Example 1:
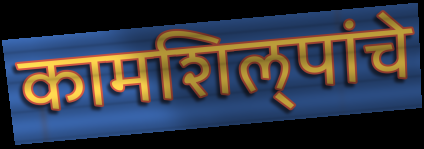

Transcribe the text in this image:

कामशिल्पांचे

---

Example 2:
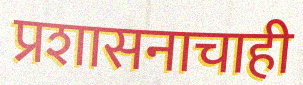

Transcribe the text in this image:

प्रशासनाचाही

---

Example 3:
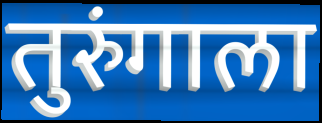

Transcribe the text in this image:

तुरुंगाला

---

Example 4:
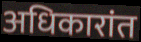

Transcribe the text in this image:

अधिकारांत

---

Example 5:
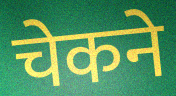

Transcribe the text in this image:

चेकने